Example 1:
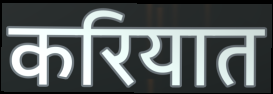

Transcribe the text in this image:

करियात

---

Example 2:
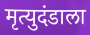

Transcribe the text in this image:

मृत्युदंडाला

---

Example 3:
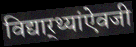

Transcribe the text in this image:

विद्यार्थ्यांऐवजी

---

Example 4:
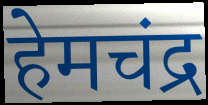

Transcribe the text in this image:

हेमचंद्र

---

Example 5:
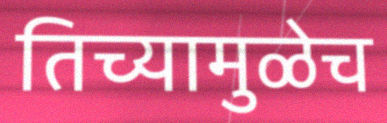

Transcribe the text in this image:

तिच्यामुळेच